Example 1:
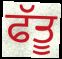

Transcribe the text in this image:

ਫੱਤੂ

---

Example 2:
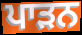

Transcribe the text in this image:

ਪਾੜਨ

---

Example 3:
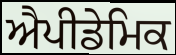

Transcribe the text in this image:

ਐਪੀਡੇਮਿਕ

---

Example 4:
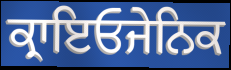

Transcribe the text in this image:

ਕ੍ਰਾਇਓਜੇਨਿਕ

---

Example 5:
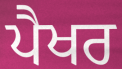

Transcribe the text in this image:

ਪੈਖਰ